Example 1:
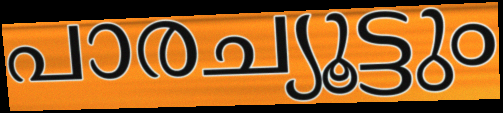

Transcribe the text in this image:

പാരച്യൂട്ടും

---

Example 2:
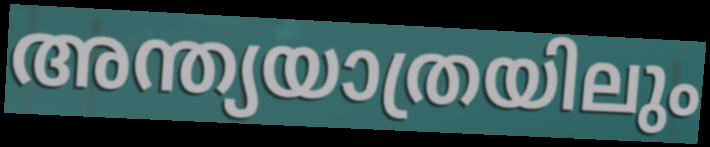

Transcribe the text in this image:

അന്ത്യയാത്രയിലും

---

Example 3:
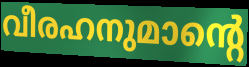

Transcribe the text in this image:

വീരഹനുമാന്റെ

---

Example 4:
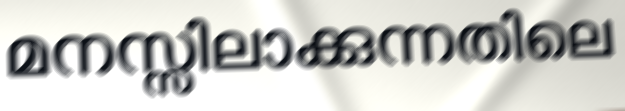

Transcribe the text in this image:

മനസ്സിലാക്കുന്നതിലെ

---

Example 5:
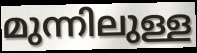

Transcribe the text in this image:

മുന്നിലുള്ള